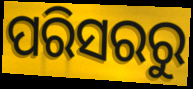
ପରିସରରୁ